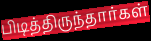
பிடித்திருந்தார்கள்